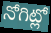
నోగిట్లో